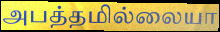
அபத்தமில்லையா